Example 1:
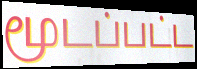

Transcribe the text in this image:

மூடப்பட்ட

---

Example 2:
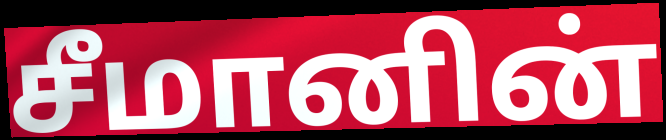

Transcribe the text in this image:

சீமானின்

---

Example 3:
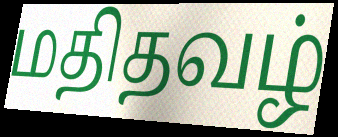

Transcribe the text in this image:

மதிதவழ்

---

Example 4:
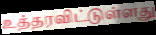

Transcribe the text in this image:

உத்தரவிட்டுள்ளது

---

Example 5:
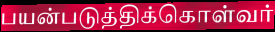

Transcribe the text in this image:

பயன்படுத்திக்கொள்வர்